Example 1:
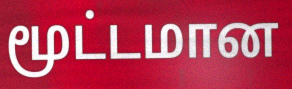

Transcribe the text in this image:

மூட்டமான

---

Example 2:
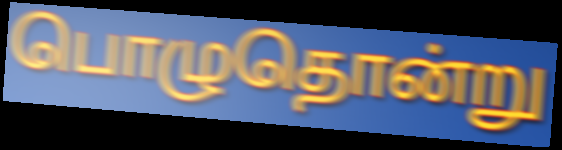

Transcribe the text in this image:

பொழுதொன்று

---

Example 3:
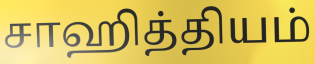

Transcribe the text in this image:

சாஹித்தியம்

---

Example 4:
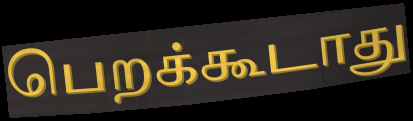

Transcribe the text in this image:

பெறக்கூடாது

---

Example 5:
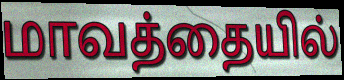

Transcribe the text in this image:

மாவத்தையில்